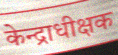
केन्द्राधीक्षक